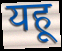
यहू